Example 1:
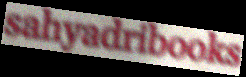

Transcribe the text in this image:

sahyadribooks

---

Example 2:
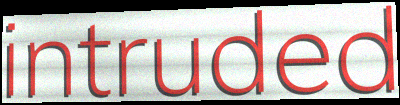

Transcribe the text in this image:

intruded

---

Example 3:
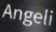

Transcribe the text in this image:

Angeli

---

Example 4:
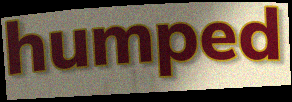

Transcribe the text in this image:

humped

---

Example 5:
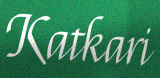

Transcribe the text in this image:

Katkari